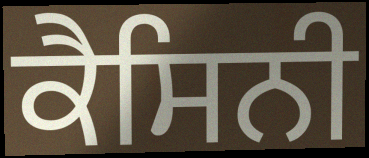
ਕੈਸਿਨੀ